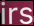
irs